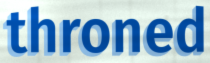
throned